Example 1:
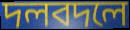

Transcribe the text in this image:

দলবদলে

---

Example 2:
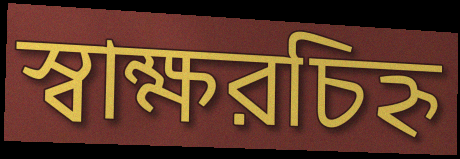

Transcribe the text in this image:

স্বাক্ষরচিহ্ন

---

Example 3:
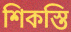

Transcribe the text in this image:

শিকস্তি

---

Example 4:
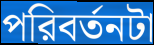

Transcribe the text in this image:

পরিবর্তনটা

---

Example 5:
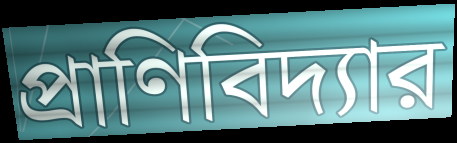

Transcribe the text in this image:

প্রাণিবিদ্যার